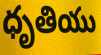
ధృతియు